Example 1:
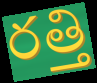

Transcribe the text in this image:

రత్తి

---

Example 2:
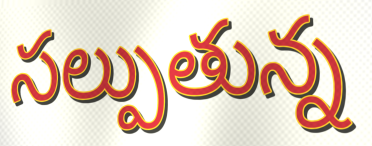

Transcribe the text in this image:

సల్పుతున్న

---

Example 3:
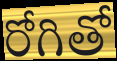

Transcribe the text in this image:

రోగితో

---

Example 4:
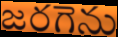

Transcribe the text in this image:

జరగెను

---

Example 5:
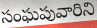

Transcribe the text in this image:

సంఘపువారిని